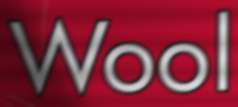
Wool